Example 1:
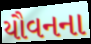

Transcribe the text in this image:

યૌવનના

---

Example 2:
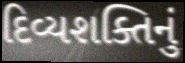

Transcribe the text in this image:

દિવ્યશક્તિનું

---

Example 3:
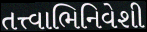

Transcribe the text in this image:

તત્ત્વાભિનિવેશી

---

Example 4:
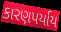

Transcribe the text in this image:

કારણપર્યાય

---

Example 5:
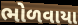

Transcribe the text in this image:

ભોળવાયા